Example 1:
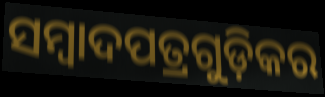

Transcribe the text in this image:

ସମ୍ୱାଦପତ୍ରଗୁଡ଼ିକର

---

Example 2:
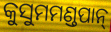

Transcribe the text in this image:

କୁସୁମମଣ୍ଡପାନ୍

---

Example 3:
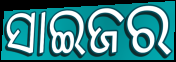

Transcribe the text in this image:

ସାଇଜର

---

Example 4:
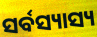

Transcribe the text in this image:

ସର୍ବସ୍ୟାସ୍ୟ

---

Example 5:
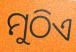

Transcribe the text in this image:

ମୁଠିଏ